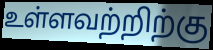
உள்ளவற்றிற்கு